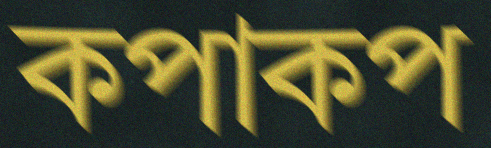
কপাকপ